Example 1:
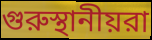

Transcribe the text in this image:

গুরুস্থানীয়রা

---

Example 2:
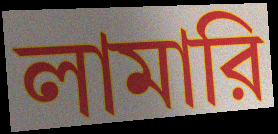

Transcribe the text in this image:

লামারি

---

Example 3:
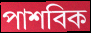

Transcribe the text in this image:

পাশবিক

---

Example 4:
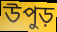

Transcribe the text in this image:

উপুড়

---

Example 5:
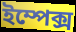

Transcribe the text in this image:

ইম্পেক্স